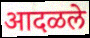
आदळले